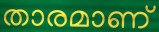
താരമാണ്